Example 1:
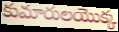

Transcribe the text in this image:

కుమారులయొక్క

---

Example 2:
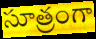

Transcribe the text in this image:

సూత్రంగా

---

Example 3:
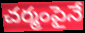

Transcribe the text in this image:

చర్మంపైనే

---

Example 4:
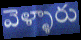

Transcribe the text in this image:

వెళ్ళారు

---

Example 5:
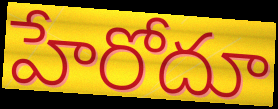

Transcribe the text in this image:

హేరోదూ